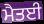
ਮੈਤਈ